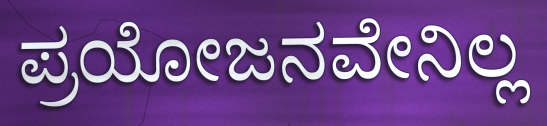
ಪ್ರಯೋಜನವೇನಿಲ್ಲ